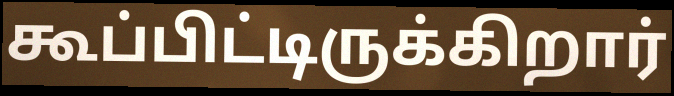
கூப்பிட்டிருக்கிறார்